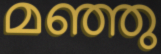
മഞ്ഞു